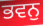
ਭਵਨੁ